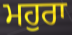
ਮਹੁਰਾ